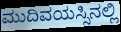
ಮುದಿವಯಸ್ಸಿನಲ್ಲಿ